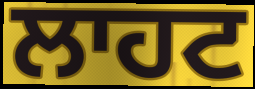
ਲਾਹਟ